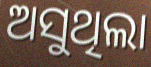
ଅସୁଥିଲା